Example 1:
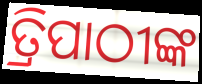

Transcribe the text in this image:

ତ୍ରିପାଠୀଙ୍କ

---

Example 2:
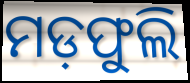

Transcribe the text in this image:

ମଡ଼ଫୁଲି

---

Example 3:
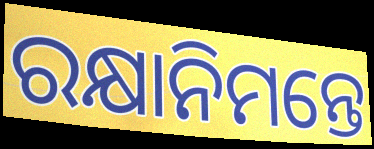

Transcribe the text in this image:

ରକ୍ଷାନିମନ୍ତେ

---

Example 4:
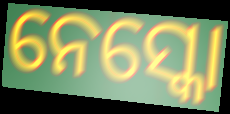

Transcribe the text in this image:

ନେସ୍କୋ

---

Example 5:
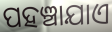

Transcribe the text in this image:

ପହଞ୍ଚାଯାଏ